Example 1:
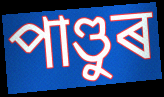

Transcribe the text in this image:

পাণ্ডুৰ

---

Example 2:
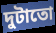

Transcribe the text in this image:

দুটাতো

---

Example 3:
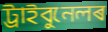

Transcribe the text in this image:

ট্ৰাইবুনেলৰ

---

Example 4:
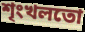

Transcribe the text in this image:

শৃংখলতো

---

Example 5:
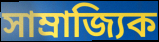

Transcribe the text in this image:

সাম্ৰাজ্যিক